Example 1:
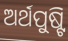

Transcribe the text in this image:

ଅର୍ଥପୁଷ୍ଟି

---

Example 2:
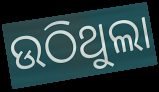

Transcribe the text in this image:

ଉଠିଥୁଲା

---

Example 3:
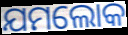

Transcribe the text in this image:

ଯମଲୋକ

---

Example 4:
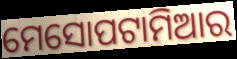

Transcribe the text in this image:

ମେସୋପଟାମିଆର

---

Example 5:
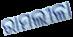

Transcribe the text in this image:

ରାମଲୀଳା